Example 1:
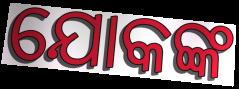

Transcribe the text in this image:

ଯୋକଙ୍କ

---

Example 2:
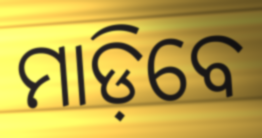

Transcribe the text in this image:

ମାଡ଼ିବେ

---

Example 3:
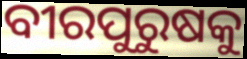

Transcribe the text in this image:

ବୀରପୁରୁଷକୁ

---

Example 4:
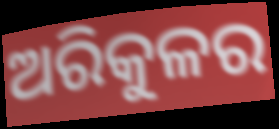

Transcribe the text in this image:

ଅରିକୁଳର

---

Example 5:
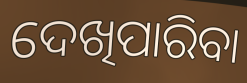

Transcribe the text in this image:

ଦେଖିପାରିବା